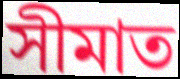
সীমাত